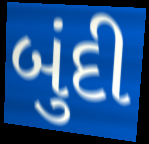
બુંદી